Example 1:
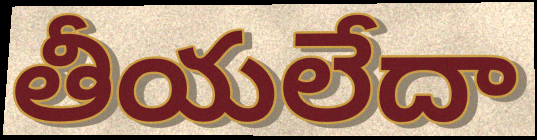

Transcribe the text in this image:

తీయలేదా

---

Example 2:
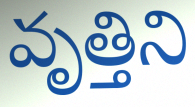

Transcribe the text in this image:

వృత్తిని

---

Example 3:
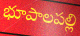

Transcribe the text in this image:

భూపాలపల్లి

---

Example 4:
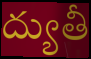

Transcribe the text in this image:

ద్యుతీ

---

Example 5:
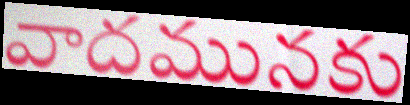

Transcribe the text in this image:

వాదమునకు